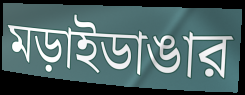
মড়াইডাঙার